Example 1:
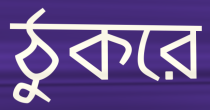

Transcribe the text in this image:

ঠুকরে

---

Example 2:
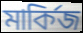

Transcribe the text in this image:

মার্কিজ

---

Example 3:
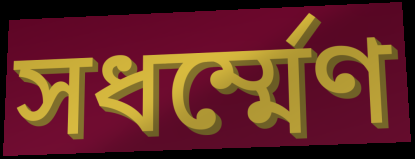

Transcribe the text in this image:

সধর্ম্মেণ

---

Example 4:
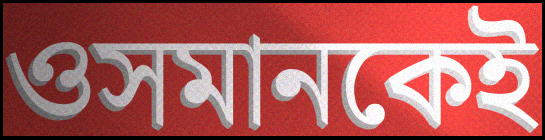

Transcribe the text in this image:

ওসমানকেই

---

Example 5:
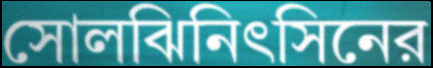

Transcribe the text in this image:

সোলঝিনিৎসিনের